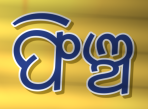
ଫିଞ୍ଚ